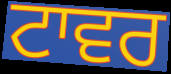
ਟਾਵਰ